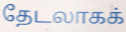
தேடலாகக்